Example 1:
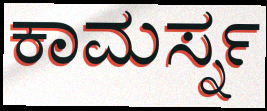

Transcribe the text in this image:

ಕಾಮರ್ಸ್ನ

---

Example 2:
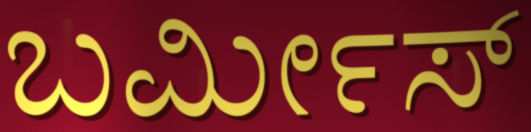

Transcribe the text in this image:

ಬರ್ಮೀಸ್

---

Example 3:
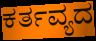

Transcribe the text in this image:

ಕರ್ತವ್ಯದ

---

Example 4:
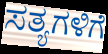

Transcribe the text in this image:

ಸತ್ಯಗಳಿಗೆ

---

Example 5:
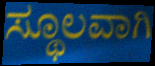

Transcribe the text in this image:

ಸ್ಥೂಲವಾಗಿ